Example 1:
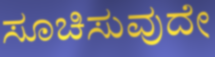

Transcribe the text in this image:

ಸೂಚಿಸುವುದೇ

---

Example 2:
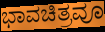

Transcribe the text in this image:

ಭಾವಚಿತ್ರವೂ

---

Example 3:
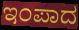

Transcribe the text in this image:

ಇಂಪಾದ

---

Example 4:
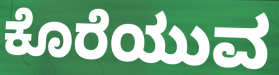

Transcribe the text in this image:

ಕೊರೆಯುವ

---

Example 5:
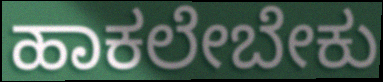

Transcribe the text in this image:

ಹಾಕಲೇಬೇಕು